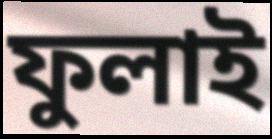
ফুলাই